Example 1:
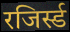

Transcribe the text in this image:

रजिर्स्ड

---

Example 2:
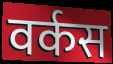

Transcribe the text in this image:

वर्कस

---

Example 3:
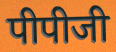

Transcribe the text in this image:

पीपीजी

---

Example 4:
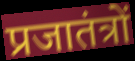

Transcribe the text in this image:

प्रजातंत्रों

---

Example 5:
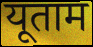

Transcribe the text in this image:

यूताम